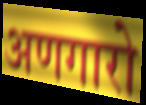
अणगारो